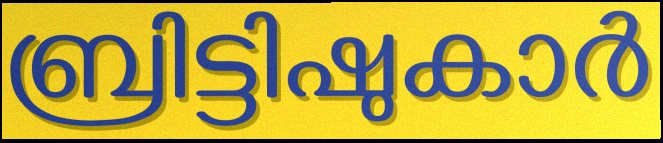
ബ്രിട്ടിഷുകാർ